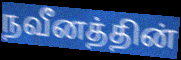
நவீனத்தின்